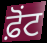
ਫ਼ੋਂਟ